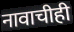
नावाचीही